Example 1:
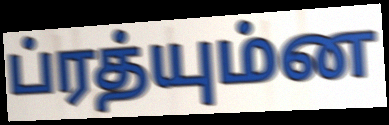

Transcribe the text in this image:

ப்ரத்யும்ன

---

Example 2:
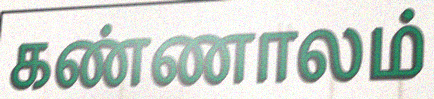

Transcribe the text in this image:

கண்ணாலம்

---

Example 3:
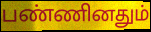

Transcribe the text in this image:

பண்ணினதும்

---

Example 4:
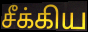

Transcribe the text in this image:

சீக்கிய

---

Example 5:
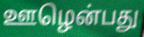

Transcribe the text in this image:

ஊழென்பது